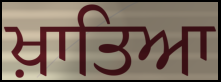
ਖ਼ਾਤਿਆ